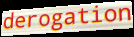
derogation